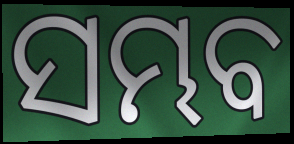
ସମ୍ଭବ